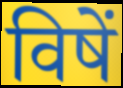
विषें